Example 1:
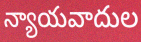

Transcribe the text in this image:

న్యాయవాదుల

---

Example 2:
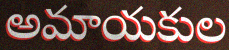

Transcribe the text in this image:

అమాయకుల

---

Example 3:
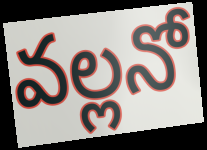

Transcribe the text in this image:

వల్లనో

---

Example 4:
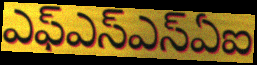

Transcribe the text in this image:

ఎఫ్ఎస్ఎస్ఏఐ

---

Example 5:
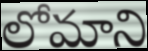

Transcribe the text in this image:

లోమాని